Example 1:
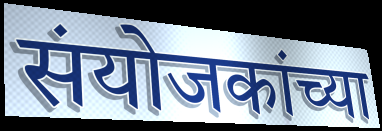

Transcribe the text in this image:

संयोजकांच्या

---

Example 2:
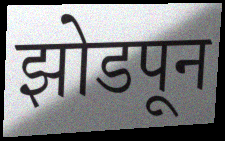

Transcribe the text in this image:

झोडपून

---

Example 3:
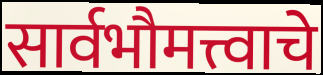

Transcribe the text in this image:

सार्वभौमत्त्वाचे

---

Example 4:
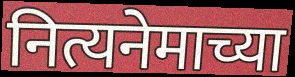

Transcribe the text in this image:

नित्यनेमाच्या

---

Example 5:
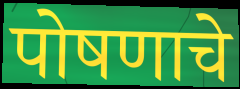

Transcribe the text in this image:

पोषणाचे